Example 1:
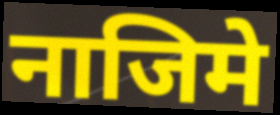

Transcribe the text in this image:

नाजिमे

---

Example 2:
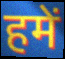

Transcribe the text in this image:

हमें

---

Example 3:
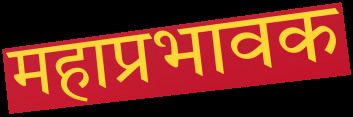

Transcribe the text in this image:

महाप्रभावक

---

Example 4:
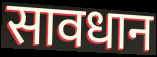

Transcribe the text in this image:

सावधान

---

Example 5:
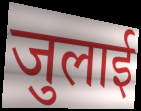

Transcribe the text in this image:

जुलाई